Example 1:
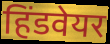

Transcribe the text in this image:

हिंडवेयर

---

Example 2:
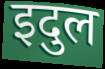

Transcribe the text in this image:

इदुल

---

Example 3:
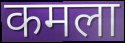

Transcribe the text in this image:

कमला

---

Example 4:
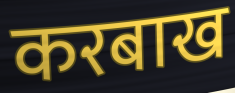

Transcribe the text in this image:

करबाख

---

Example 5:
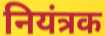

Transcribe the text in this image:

नियंत्रक